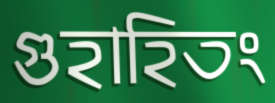
গুহাহিতং